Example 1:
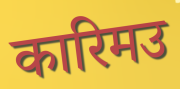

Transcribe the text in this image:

कारिमउ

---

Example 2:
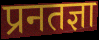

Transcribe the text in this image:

प्रनतज्ञा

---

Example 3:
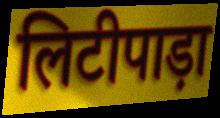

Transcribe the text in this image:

लिटीपाड़ा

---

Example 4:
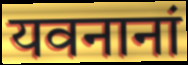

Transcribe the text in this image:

यवनानां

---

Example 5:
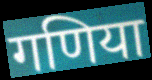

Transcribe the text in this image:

गणिया